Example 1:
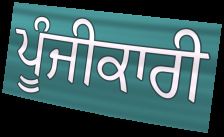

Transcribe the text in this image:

ਪੂੰਜੀਕਾਰੀ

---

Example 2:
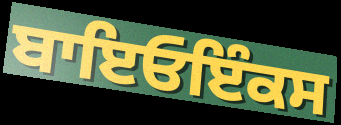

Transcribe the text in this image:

ਬਾਇਓਇੰਕਸ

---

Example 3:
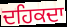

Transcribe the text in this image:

ਦਹਿਕਦਾ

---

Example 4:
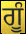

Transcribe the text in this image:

ਗੂੰ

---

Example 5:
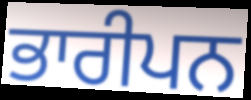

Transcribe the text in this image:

ਭਾਰੀਪਨ